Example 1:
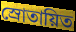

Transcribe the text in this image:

স্রোতায়িত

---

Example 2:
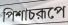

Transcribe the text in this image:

পিশাচরূপে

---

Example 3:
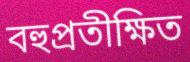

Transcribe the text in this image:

বহুপ্রতীক্ষিত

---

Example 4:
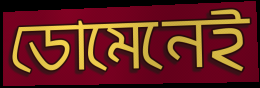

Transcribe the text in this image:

ডোমেনেই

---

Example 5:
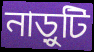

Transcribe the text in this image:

নাড়ুটি